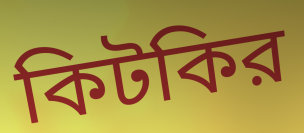
কিটকির